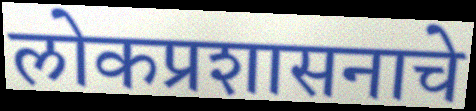
लोकप्रशासनाचे